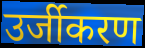
उर्जीकरण